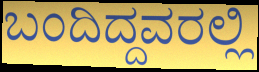
ಬಂದಿದ್ದವರಲ್ಲಿ